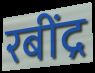
रबींद्र